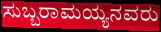
ಸುಬ್ಬರಾಮಯ್ಯನವರು